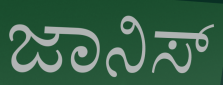
ಜಾನಿಸ್